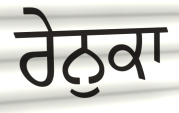
ਰੇਨੁਕਾ